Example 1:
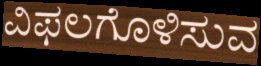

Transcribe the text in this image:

ವಿಫಲಗೊಳಿಸುವ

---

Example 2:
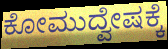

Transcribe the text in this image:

ಕೋಮುದ್ವೇಷಕ್ಕೆ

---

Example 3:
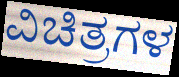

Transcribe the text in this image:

ವಿಚಿತ್ರಗಳ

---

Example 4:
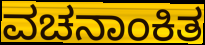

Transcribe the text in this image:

ವಚನಾಂಕಿತ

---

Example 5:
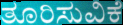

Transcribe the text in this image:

ತೂರಿಸುವಿಕೆ